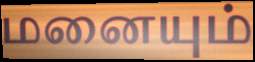
மனையும்